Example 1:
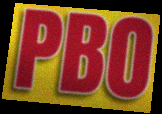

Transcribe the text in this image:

PBO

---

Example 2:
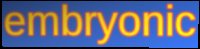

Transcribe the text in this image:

embryonic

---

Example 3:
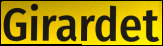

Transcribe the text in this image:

Girardet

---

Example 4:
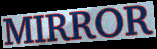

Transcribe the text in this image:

MIRROR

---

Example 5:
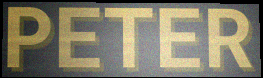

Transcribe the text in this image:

PETER